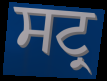
ਸਟ੍ਰ